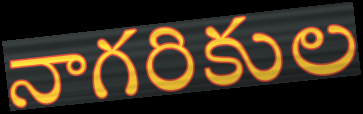
నాగరికుల